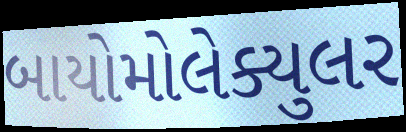
બાયોમોલેક્યુલર